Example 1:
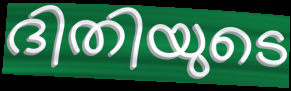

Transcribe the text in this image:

ദിതിയുടെ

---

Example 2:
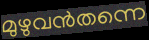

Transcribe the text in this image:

മുഴുവൻതന്നെ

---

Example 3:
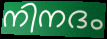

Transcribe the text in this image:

നിനദം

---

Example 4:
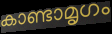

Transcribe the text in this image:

കാണ്ടാമൃഗം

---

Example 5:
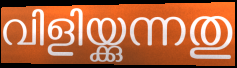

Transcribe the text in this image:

വിളിയ്ക്കുന്നതു